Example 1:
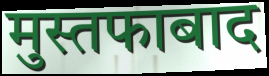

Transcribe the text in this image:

मुस्तफाबाद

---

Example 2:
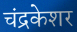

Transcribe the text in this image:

चंद्रकेशर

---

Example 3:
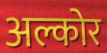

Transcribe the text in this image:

अल्कोर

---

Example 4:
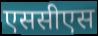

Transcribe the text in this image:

एससीएस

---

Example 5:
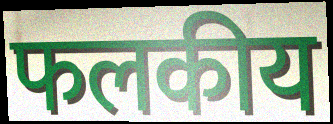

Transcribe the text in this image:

फलकीय